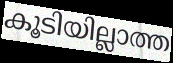
കൂടിയില്ലാത്ത